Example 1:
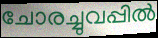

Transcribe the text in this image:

ചോരച്ചുവപ്പിൽ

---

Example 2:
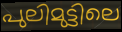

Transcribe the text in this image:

പുലിമുട്ടിലെ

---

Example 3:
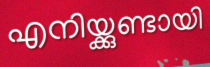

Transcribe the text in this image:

എനിയ്ക്കുണ്ടായി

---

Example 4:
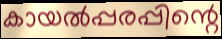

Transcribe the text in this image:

കായൽപ്പരപ്പിന്റെ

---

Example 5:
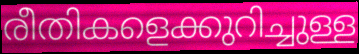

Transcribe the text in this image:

രീതികളെക്കുറിച്ചുള്ള